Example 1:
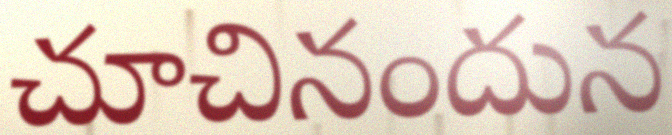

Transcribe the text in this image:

చూచినందున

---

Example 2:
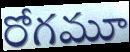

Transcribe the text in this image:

రోగమూ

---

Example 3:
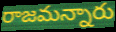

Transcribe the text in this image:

రాజమన్నారు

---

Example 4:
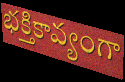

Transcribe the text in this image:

భక్తికావ్యంగా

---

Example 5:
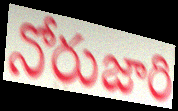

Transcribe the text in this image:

నోరుజారి